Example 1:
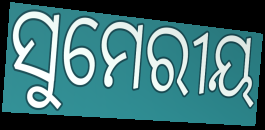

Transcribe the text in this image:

ସୁମେରୀୟ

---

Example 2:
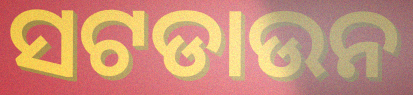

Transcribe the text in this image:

ସଟଡାଉନ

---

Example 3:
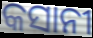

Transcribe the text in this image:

କସାନୀ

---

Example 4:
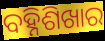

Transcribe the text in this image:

ବହ୍ନିଶିଖାର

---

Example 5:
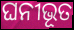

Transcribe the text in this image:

ଘନୀଭୂତ